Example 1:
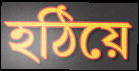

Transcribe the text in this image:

হঠিয়ে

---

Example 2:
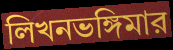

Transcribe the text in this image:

লিখনভঙ্গিমার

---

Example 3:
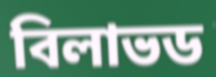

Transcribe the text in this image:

বিলাভড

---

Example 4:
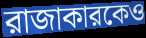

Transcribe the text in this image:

রাজাকারকেও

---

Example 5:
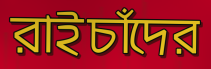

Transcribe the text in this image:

রাইচাঁদের